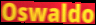
Oswaldo